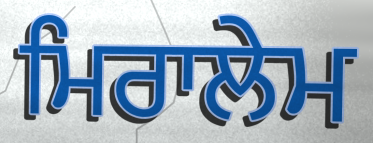
ਮਿਰਾਲੇਮ